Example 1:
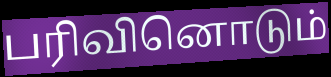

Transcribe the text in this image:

பரிவினொடும்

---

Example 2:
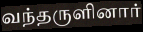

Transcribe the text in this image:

வந்தருளினார்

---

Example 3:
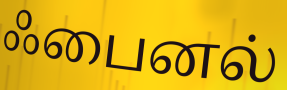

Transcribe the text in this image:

ஃபைனல்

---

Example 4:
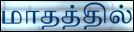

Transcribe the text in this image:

மாதத்தில்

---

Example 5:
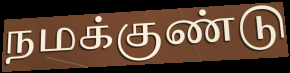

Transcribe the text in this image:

நமக்குண்டு